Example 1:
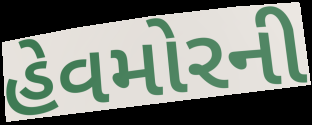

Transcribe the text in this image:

હેવમોરની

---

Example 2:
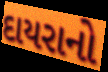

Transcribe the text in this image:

દાયરાનો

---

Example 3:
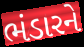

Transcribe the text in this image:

ભંડારને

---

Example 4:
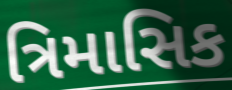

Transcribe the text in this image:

ત્રિમાસિક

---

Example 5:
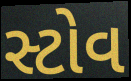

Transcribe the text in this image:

સ્ટોવ